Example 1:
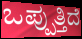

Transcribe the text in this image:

ಒಪ್ಪುತ್ತಿದೆ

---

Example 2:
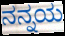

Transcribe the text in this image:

ನನ್ನಯ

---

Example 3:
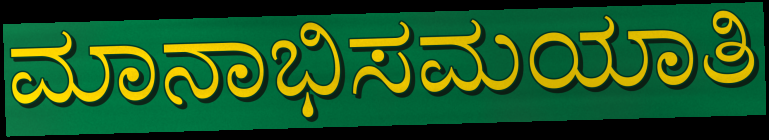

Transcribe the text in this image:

ಮಾನಾಭಿಸಮಯಾತಿ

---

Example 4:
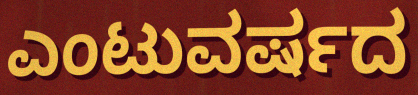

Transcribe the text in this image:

ಎಂಟುವರ್ಷದ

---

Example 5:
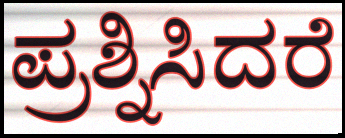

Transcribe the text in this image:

ಪ್ರಶ್ನಿಸಿದರೆ